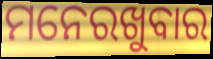
ମନେରଖୁବାର